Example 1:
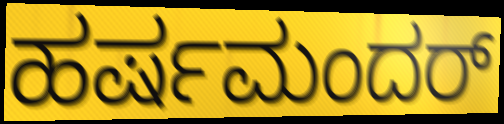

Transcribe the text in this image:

ಹರ್ಷಮಂದರ್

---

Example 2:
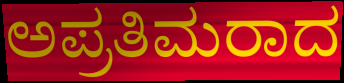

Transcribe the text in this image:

ಅಪ್ರತಿಮರಾದ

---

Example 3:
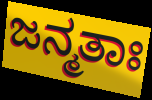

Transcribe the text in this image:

ಜನ್ಮತಾಃ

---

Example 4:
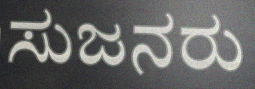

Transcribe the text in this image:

ಸುಜನರು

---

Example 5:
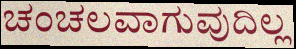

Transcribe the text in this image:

ಚಂಚಲವಾಗುವುದಿಲ್ಲ